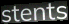
stents